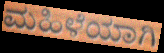
ಮಹಿಳೆಯಾಗಿ